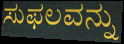
ಸುಫಲವನ್ನು